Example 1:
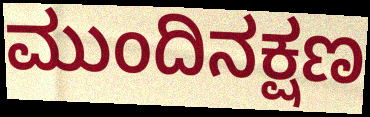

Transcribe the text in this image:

ಮುಂದಿನಕ್ಷಣ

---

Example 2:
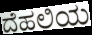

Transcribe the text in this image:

ದೆಹಲಿಯ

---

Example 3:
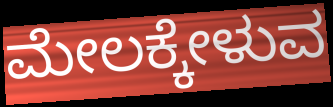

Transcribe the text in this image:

ಮೇಲಕ್ಕೇಳುವ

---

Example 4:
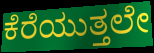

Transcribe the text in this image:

ಕೆರೆಯುತ್ತಲೇ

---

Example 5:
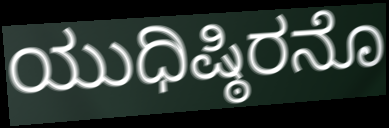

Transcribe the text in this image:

ಯುಧಿಷ್ಠಿರನೊ